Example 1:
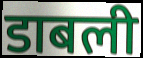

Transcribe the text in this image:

डाबली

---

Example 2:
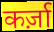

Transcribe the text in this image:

कर्ज़ा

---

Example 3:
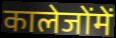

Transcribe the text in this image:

कालेजोंमें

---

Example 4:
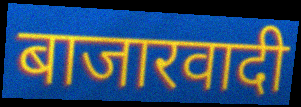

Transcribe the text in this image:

बाजारवादी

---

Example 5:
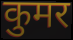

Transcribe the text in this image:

कुमर